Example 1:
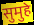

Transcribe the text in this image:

सुमुहे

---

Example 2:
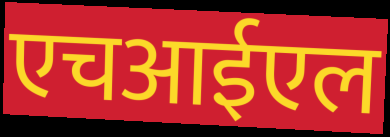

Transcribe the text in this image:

एचआईएल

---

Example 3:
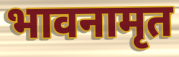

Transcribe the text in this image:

भावनामृत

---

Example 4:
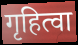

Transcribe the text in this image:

गृहित्वा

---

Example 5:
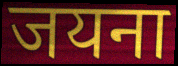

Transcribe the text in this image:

जयना